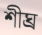
শীঘ্র